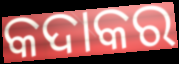
କଦାକର